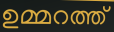
ഉമ്മറത്ത്